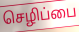
செழிப்பை